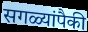
सगळ्यांपैकी